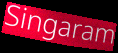
Singaram